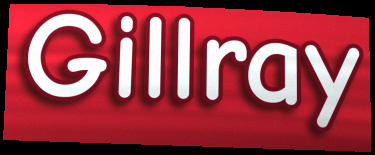
Gillray